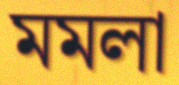
মমলা